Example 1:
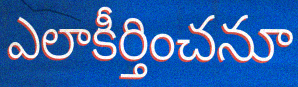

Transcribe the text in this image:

ఎలాకీర్తించనూ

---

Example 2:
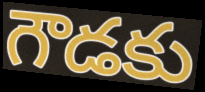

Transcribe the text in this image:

గౌడకు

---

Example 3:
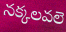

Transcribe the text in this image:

నక్కలవలె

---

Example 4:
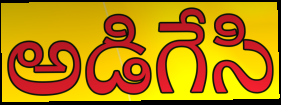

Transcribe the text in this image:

అడిగేసి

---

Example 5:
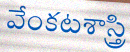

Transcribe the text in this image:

వేంకటశాస్త్రి